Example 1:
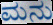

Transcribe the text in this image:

ಮನು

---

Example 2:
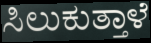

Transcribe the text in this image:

ಸಿಲುಕುತ್ತಾಳೆ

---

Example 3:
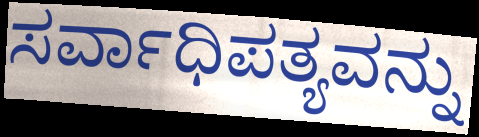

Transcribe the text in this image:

ಸರ್ವಾಧಿಪತ್ಯವನ್ನು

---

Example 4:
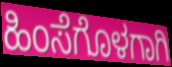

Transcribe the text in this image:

ಹಿಂಸೆಗೊಳಗಾಗಿ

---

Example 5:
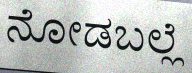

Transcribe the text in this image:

ನೋಡಬಲ್ಲೆ